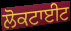
ਲੋਕਟਾਈਟ